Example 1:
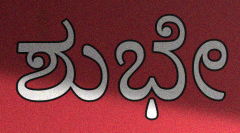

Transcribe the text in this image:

ಶುಭೇ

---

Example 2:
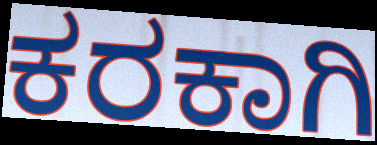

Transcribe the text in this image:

ಕರಕಾಗಿ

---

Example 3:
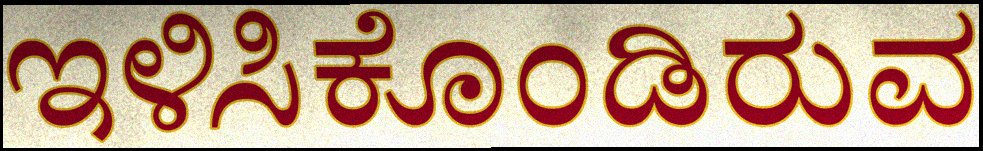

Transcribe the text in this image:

ಇಳಿಸಿಕೊಂಡಿರುವ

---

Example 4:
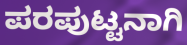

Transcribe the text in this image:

ಪರಪುಟ್ಟನಾಗಿ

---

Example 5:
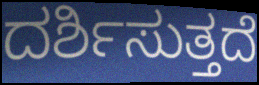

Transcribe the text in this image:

ದರ್ಶಿಸುತ್ತದೆ